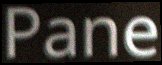
Pane